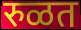
रुळत